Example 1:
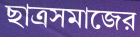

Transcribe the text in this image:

ছাত্রসমাজের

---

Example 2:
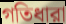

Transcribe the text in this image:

গতিধারা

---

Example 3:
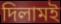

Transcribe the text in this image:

দিলামই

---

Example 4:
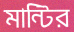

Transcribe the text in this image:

মান্টির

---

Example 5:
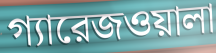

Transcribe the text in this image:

গ্যারেজওয়ালা